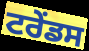
ਟਰੇਂਡਸ